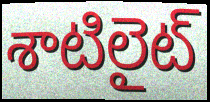
శాటిలైట్